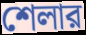
শেলার